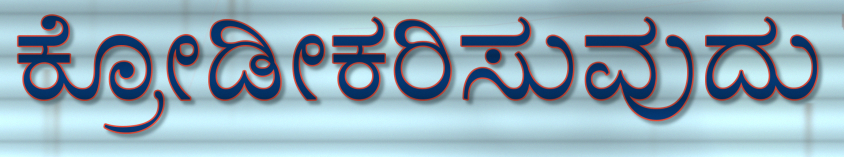
ಕ್ರೋಡೀಕರಿಸುವುದು